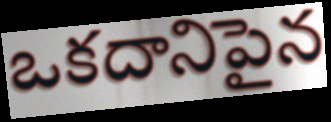
ఒకదానిపైన